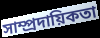
সাম্প্ৰদায়িকতা